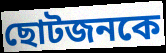
ছোটজনকে